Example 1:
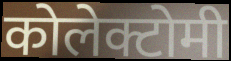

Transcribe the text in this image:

कोलेक्टोमी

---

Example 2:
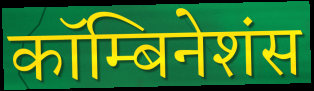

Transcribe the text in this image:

कॉम्बिनेशंस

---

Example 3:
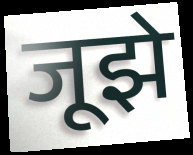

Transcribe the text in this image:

जूझे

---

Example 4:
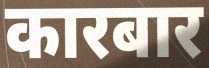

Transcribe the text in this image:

कारबार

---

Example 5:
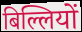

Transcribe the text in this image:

बिल्लियों